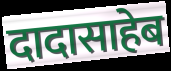
दादासाहेब